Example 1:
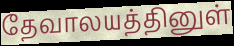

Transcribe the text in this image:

தேவாலயத்தினுள்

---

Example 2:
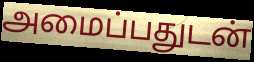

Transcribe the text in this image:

அமைப்பதுடன்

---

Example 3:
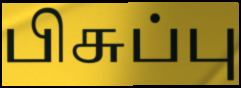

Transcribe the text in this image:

பிசுப்பு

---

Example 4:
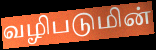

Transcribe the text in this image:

வழிபடுமின்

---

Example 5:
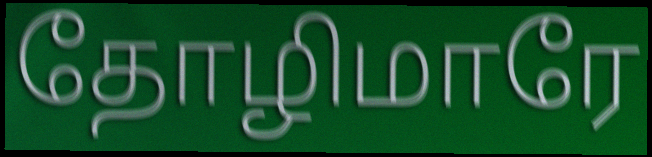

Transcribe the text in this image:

தோழிமாரே